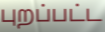
புறப்பட்ட